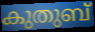
കുതുബ്